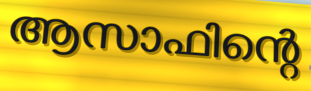
ആസാഫിന്റെ